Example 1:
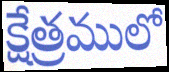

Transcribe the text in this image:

క్షేత్రములో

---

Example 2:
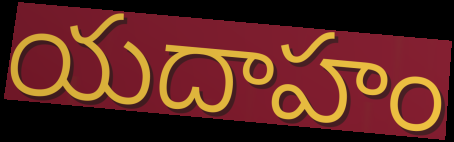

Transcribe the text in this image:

యదాహం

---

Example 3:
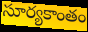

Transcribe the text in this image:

సూర్యకాంతం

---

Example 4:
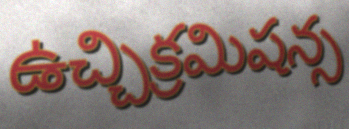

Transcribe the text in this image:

ఉచ్చిక్రమిషన్స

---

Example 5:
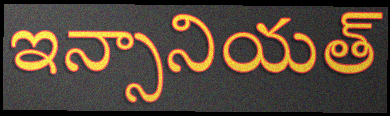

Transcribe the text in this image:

ఇన్సానియత్